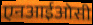
एनआईओसी